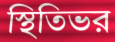
স্থিতিভর